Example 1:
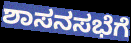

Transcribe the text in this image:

ಶಾಸನಸಭೆಗೆ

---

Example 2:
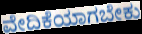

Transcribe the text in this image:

ವೇದಿಕೆಯಾಗಬೇಕು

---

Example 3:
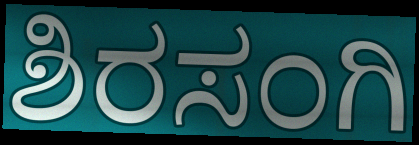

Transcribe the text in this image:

ಶಿರಸಂಗಿ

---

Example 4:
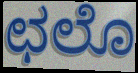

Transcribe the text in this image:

ಛಲೊ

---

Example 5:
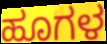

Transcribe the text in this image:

ಹೂಗಳ